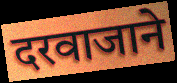
दरवाजाने